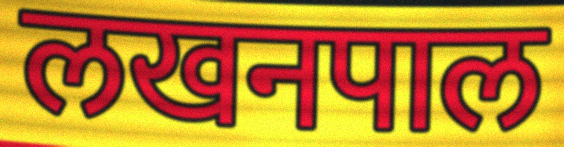
लखनपाल